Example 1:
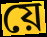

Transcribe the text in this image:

য়ে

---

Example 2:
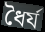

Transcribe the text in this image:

ধৈৰ্য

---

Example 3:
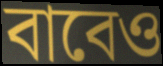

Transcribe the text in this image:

বাবেও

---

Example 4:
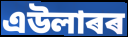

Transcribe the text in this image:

এউলাৰৰ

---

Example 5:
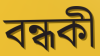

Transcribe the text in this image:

বন্ধকী